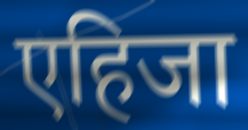
एहिजा